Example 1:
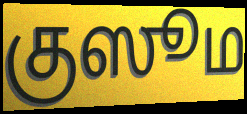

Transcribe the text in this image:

குஸூம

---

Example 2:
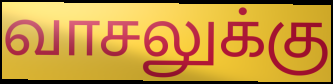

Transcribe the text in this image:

வாசலுக்கு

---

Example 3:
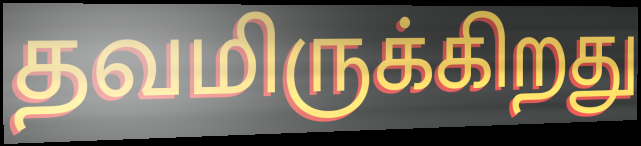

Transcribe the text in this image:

தவமிருக்கிறது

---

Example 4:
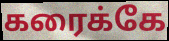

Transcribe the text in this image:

கரைக்கே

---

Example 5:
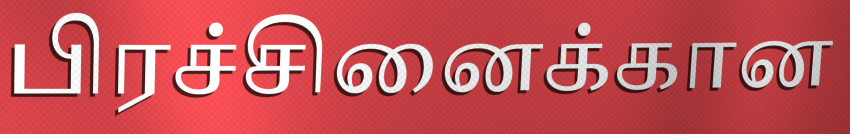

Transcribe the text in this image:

பிரச்சினைக்கான